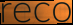
reco